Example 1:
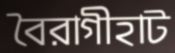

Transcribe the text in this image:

বৈরাগীহাট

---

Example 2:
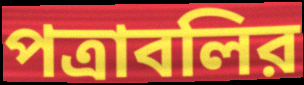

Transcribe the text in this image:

পত্রাবলির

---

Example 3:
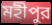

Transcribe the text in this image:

মহীপুর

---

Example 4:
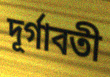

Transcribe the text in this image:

দূর্গাবতী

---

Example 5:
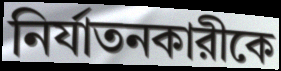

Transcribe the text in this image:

নির্যাতনকারীকে